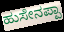
ಹುಸೇನಪ್ಪಾ